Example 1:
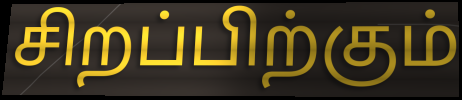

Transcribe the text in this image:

சிறப்பிற்கும்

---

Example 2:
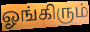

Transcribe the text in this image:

ஓங்கிரும்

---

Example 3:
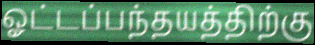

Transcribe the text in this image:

ஓட்டப்பந்தயத்திற்கு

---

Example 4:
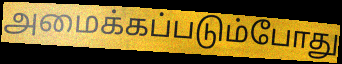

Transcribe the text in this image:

அமைக்கப்படும்போது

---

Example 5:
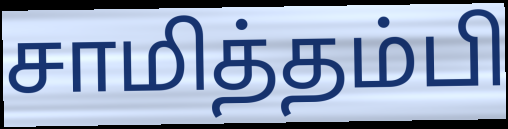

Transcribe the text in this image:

சாமித்தம்பி